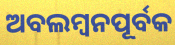
ଅବଲମ୍ୱନପୂର୍ବକ